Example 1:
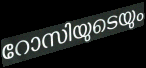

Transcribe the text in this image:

റോസിയുടെയും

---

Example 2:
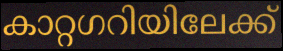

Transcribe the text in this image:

കാറ്റഗറിയിലേക്ക്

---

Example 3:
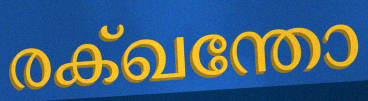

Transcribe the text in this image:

രക്ഖന്തോ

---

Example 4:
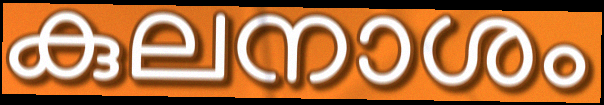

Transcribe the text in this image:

കുലനാശം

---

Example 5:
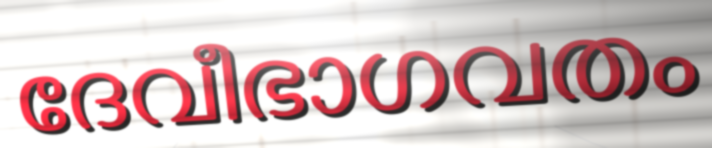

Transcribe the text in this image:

ദേവീഭാഗവതം